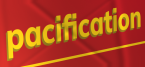
pacification